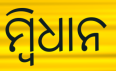
ମ୍ବିଧାନ